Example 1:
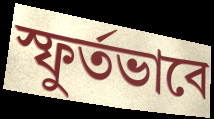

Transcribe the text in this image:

স্ফুর্তভাবে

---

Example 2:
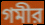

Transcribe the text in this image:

গমীর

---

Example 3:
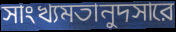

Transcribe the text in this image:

সাংখ্যমতানুদসারে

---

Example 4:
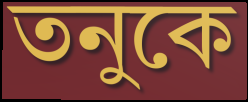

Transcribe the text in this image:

তনুকে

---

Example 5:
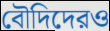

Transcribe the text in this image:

বৌদিদেরও